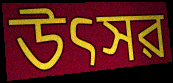
উৎসৱ